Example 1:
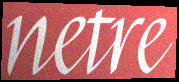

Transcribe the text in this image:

netre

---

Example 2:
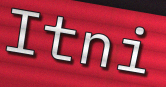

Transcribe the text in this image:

Itni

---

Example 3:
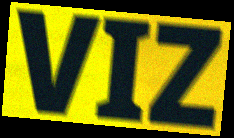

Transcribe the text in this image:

VIZ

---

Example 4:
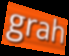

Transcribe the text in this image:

grah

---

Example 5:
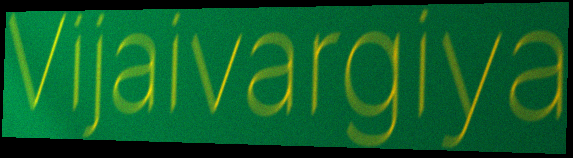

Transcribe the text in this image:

Vijaivargiya